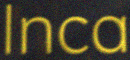
Inca